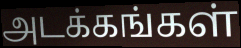
அடக்கங்கள்